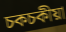
চকচকীয়া